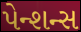
પેન્શન્સ